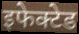
इफेक्टेड